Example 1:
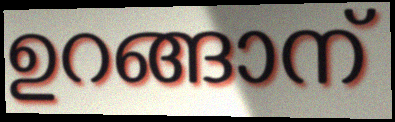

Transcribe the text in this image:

ഉറങ്ങാന്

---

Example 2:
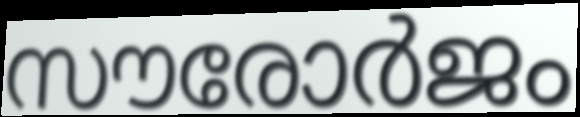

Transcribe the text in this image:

സൗരോർജം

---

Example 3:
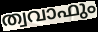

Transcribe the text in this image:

ത്വവാഫും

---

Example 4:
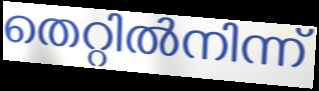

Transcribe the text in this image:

തെറ്റിൽനിന്ന്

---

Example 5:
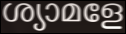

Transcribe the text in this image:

ശ്യാമളേ